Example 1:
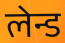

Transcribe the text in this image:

लेन्ड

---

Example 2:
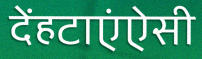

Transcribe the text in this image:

देंहटाएंऐसी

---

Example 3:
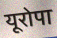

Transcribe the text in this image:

यूरोपा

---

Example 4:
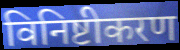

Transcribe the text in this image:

विनिष्टीकरण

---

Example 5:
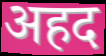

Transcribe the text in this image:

अहद